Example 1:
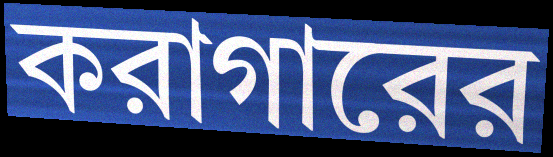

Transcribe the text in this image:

করাগারের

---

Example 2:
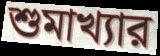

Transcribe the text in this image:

শুমাখ্যার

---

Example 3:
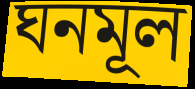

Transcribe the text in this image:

ঘনমূল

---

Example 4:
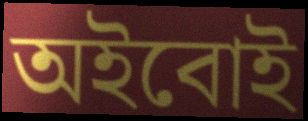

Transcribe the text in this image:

অইবোই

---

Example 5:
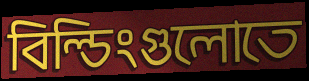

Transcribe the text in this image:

বিল্ডিংগুলোতে